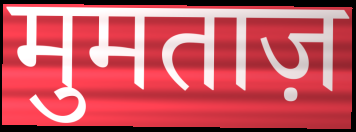
मुमताज़